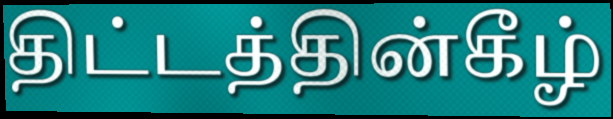
திட்டத்தின்கீழ்